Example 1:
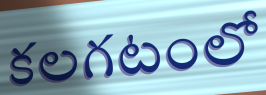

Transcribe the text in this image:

కలగటంలో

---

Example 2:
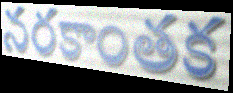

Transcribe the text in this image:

నరకాంతక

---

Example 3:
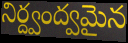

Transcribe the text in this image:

నిర్ద్వంద్వమైన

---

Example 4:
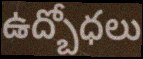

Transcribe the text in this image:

ఉద్బోధలు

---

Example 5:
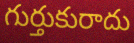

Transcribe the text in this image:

గుర్తుకురాదు